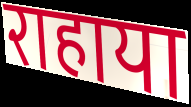
राहाया